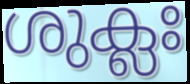
ശുക്ലഃ